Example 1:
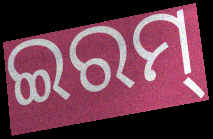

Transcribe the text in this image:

ଇରମ୍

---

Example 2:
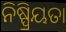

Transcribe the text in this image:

ନିଷ୍ପ୍ରିୟତା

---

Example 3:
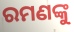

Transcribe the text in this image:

ରମଣଙ୍କୁ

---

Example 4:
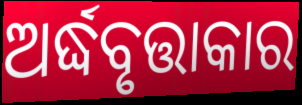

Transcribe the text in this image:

ଅର୍ଦ୍ଧବୃତ୍ତାକାର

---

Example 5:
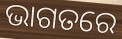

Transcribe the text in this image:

ଭାଗତରେ